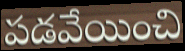
పడవేయించి